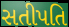
સતીપતિ